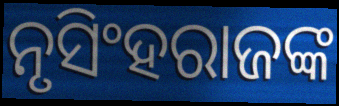
ନୃସିଂହରାଜଙ୍କ